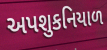
અપશુકનિયાળ